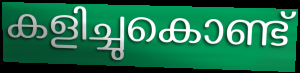
കളിച്ചുകൊണ്ട്